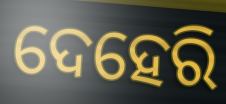
ଦେହେରି